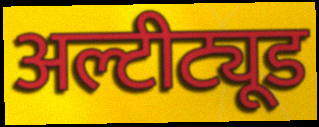
अल्टीट्यूड